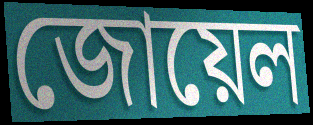
জোয়েল